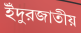
ইঁদুরজাতীয়